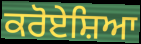
ਕਰੋਏਸ਼ਿਆ